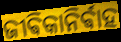
ଜୀଵିକାନିର୍ଵାହ